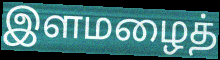
இளமழைத்